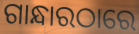
ଗାନ୍ଧାରଠାରେ